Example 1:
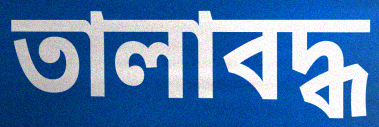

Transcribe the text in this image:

তালাবদ্ধ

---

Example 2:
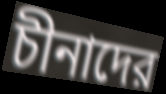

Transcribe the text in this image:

চীনাদের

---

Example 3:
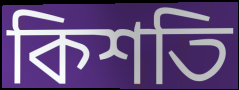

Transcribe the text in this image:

কিশতি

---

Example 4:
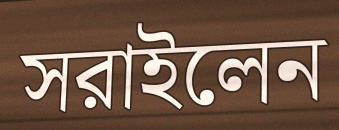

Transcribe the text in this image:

সরাইলেন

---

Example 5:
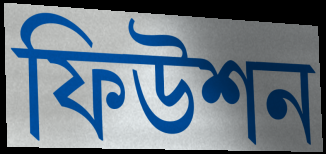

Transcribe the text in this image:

ফিউশন